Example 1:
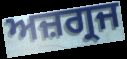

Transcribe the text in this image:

ਅਜ਼ਗ੍ਰਜ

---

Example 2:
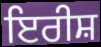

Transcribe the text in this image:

ਇਰੀਸ਼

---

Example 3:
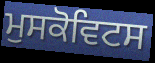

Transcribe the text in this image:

ਮੁਸਕੋਵਿਟਸ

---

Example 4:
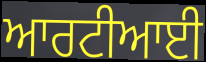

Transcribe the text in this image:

ਆਰਟੀਆਈ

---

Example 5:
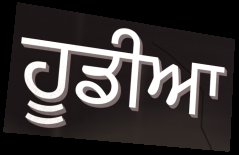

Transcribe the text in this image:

ਹੂਡੀਆ